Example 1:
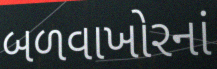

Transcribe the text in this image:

બળવાખોરનાં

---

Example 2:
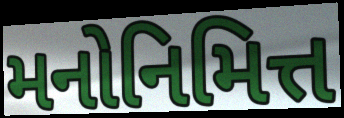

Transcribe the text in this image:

મનોનિમિત્ત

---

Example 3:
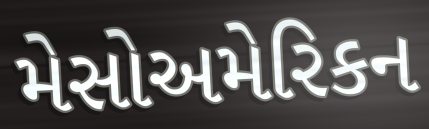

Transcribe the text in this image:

મેસોઅમેરિકન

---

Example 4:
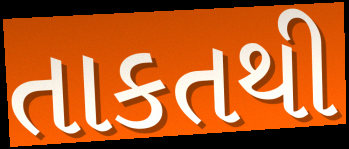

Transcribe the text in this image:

તાકતથી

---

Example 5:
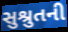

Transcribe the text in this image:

સુશ્રુતની